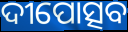
ଦୀପୋତ୍ସବ